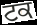
ਟਕ